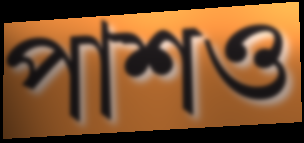
পাশও